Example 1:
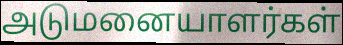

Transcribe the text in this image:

அடுமனையாளர்கள்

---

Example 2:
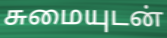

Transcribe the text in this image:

சுமையுடன்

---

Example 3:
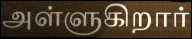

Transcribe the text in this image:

அள்ளுகிறார்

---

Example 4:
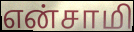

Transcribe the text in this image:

என்சாமி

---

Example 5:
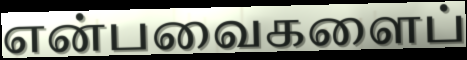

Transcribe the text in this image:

என்பவைகளைப்